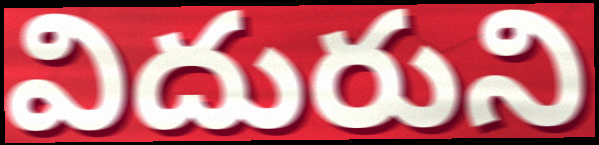
విదురుని